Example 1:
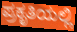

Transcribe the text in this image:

ಪ್ರಕೃತಿಯಲ್ಲಿ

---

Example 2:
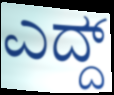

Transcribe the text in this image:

ಎದ್ದ್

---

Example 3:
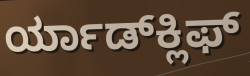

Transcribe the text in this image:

ರ್ಯಾಡ್‍ಕ್ಲಿಫ್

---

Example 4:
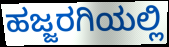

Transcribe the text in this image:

ಹಜ್ಜರಗಿಯಲ್ಲಿ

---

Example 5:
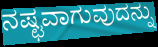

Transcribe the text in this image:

ನಷ್ಟವಾಗುವುದನ್ನು